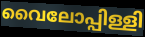
വൈലോപ്പിള്ളി